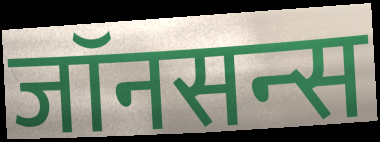
जॉनसन्स